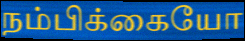
நம்பிக்கையோ